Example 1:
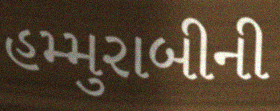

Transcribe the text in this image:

હમ્મુરાબીની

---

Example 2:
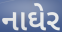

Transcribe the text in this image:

નાઘેર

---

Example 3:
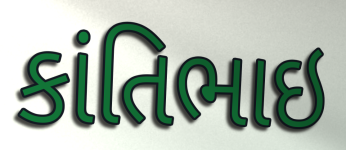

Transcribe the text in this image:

કાંતિભાઇ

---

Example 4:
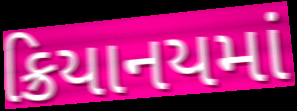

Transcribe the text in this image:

ક્રિયાનયમાં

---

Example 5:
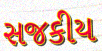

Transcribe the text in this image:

સજકીય